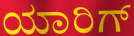
ಯಾರಿಗ್